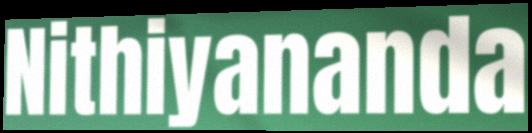
Nithiyananda